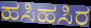
ಹಸಿಹಸಿರ